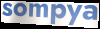
sompya